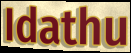
Idathu